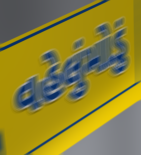
વહેલુંમોડું